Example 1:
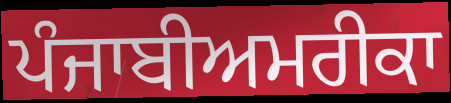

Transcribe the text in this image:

ਪੰਜਾਬੀਅਮਰੀਕਾ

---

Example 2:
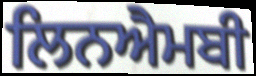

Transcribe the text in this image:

ਲਿਨਐਮਬੀ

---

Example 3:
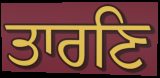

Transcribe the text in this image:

ਤਾਰਣਿ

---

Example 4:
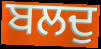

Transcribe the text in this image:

ਬਲਦੁ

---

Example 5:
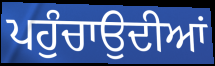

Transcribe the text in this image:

ਪਹੁੰਚਾਉਦੀਆਂ